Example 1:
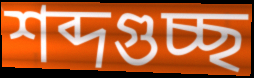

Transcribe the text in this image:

শব্দগুচ্ছ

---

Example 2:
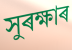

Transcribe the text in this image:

সুৰক্ষাৰ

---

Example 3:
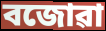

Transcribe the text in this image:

বজোৱা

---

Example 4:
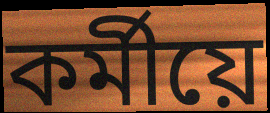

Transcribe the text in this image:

কৰ্মীয়ে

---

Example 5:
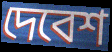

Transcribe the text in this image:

দেবেশ